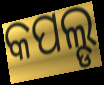
କପଲ୍ଡ